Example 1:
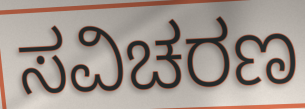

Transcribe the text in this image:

ಸವಿಚರಣ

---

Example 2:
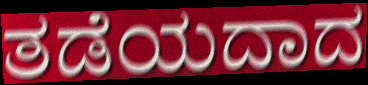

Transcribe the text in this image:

ತಡೆಯದಾದ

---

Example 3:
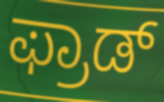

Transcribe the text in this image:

ಫ್ರಾಡ್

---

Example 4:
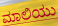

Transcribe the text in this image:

ಮಾಲಿಯು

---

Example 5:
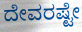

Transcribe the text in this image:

ದೇವರಷ್ಟೇ